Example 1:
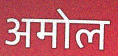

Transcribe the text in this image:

अमोल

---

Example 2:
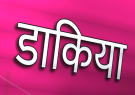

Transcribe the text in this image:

डाकिया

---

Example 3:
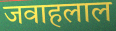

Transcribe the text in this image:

जवाहलाल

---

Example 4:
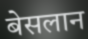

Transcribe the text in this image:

बेसलान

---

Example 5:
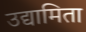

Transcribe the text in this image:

उद्यामिता